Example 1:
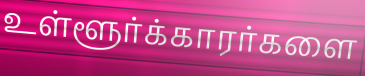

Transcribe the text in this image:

உள்ளூர்க்காரர்களை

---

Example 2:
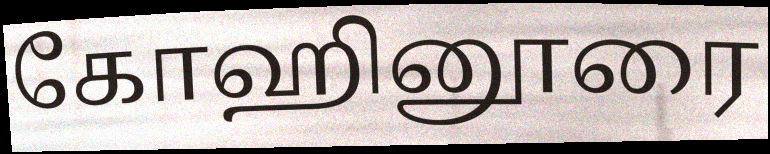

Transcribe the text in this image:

கோஹினூரை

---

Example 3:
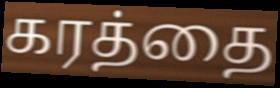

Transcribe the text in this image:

கரத்தை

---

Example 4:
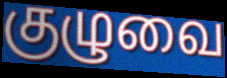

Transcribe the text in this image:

குழுவை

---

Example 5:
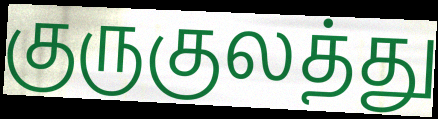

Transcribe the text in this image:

குருகுலத்து